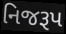
નિજરૂપ